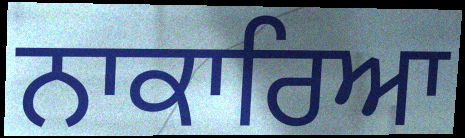
ਨਾਕਾਰਿਆ